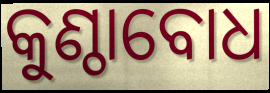
କୁଣ୍ଠାବୋଧ